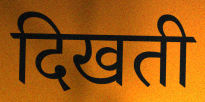
दिखती